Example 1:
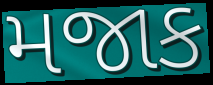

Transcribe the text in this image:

મજાક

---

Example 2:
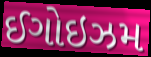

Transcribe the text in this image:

ઈગોઇઝમ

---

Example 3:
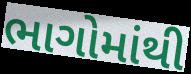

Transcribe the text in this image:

ભાગોમાંથી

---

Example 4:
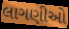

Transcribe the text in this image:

લાગણીઓ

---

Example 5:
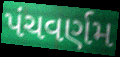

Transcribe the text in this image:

પંચવર્ણમ